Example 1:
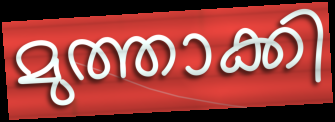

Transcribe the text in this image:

മുത്താക്കി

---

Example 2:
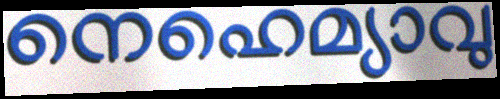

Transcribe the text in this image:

നെഹെമ്യാവു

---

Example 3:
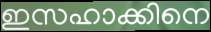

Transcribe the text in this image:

ഇസഹാക്കിനെ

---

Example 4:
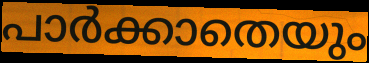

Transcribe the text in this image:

പാർക്കാതെയും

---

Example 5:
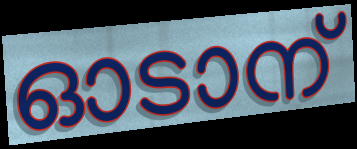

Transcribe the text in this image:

ഓടാന്